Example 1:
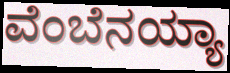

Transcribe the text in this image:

ವೆಂಬೆನಯ್ಯಾ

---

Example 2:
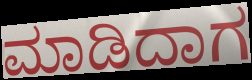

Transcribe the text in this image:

ಮಾಡಿದಾಗ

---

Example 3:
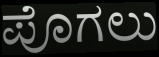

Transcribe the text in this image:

ಪೊಗಲು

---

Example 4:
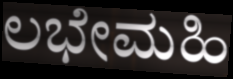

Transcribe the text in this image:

ಲಭೇಮಹಿ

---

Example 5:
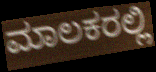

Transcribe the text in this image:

ಮಾಲಕರಲ್ಲಿ